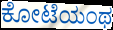
ಕೋಟೆಯಂಥ